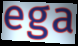
ega